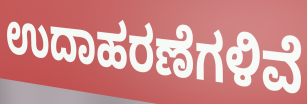
ಉದಾಹರಣೆಗಳಿವೆ